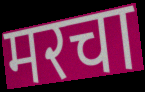
मरचा